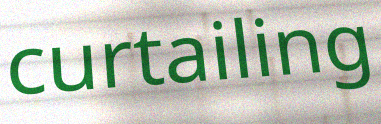
curtailing